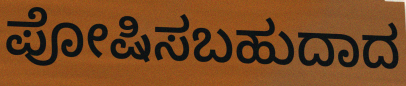
ಪೋಷಿಸಬಹುದಾದ